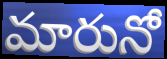
మారునో